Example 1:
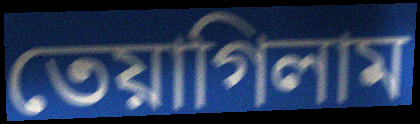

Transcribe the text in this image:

তেয়াগিলাম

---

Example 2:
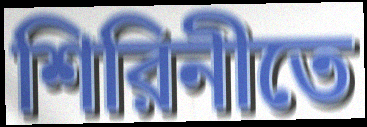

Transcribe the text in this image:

শিরিনীতে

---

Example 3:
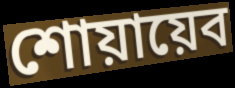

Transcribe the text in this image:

শোয়ায়েব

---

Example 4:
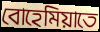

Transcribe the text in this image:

বোহেমিয়াতে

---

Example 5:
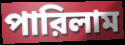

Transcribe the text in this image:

পারিলাম